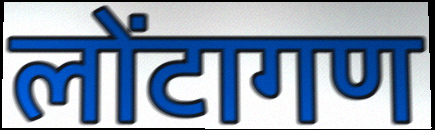
लोंटागण